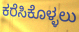
ಕರೆಸಿಕೊಳ್ಳಲು